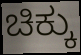
ಚಿಕ್ಕು